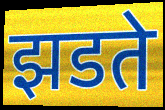
झडते